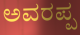
ಅವರಪ್ಪ